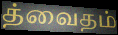
த்வைதம்